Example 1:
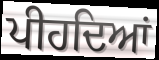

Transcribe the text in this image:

ਪੀਹਦਿਆਂ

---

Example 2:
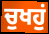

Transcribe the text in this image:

ਚੁਖਹੁਂ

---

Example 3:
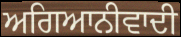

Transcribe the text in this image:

ਅਗਿਆਨੀਵਾਦੀ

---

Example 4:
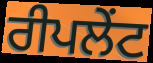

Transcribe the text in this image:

ਰੀਪਲੇਂਟ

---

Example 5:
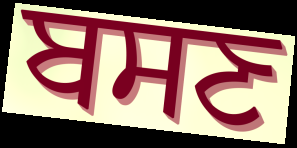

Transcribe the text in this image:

ਬਸਣ